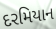
દરમિયાન